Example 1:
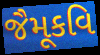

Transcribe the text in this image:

જૈમૂકવિ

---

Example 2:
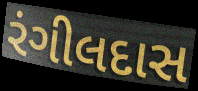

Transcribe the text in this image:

રંગીલદાસ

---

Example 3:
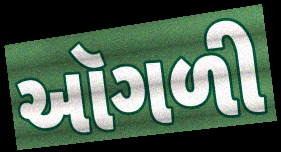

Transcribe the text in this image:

ઑગળી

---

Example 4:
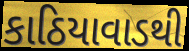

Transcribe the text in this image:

કાઠિયાવાડથી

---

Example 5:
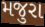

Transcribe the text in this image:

મજુરા